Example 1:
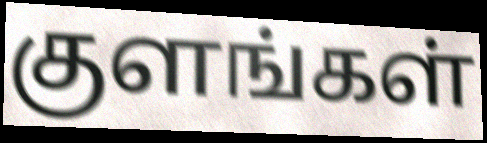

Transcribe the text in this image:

குளங்கள்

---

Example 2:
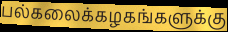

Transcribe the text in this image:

பல்கலைக்கழகங்களுக்கு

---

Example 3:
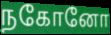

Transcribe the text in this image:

நகோனோ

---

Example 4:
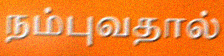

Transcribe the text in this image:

நம்புவதால்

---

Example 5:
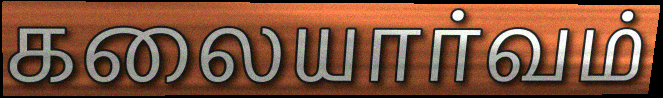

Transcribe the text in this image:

கலையார்வம்